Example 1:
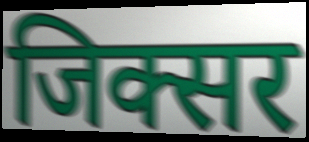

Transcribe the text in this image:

जिक्सर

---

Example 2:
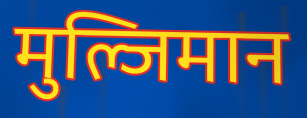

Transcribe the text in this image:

मुल्जिमान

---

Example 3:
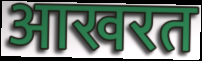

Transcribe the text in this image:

आखरत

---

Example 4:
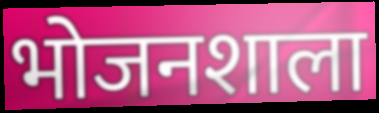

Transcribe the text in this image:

भोजनशाला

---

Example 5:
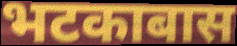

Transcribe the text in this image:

भटकाबास